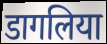
डागलिया